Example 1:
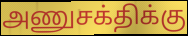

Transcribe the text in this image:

அணுசக்திக்கு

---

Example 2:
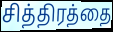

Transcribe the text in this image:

சித்திரத்தை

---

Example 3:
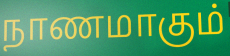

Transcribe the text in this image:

நாணமாகும்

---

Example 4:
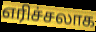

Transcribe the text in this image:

எரிச்சலாக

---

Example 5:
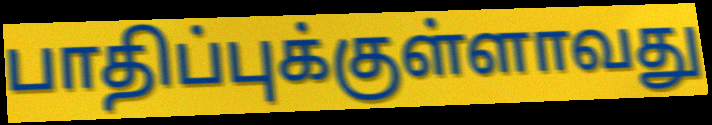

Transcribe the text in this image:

பாதிப்புக்குள்ளாவது